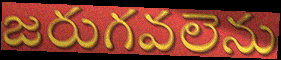
జరుగవలెను